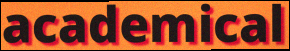
academical